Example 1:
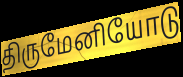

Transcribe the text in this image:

திருமேனியோடு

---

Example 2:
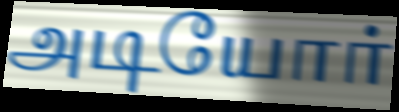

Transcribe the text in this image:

அடியோர்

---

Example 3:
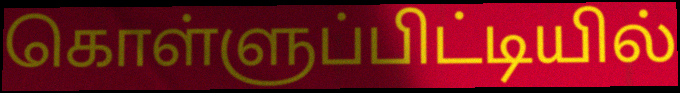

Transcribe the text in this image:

கொள்ளுப்பிட்டியில்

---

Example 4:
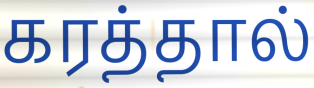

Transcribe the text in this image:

கரத்தால்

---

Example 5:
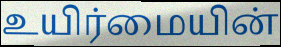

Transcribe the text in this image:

உயிர்மையின்